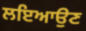
ਲਇਆਉਣ